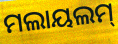
ମଲାୟଲମ୍